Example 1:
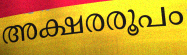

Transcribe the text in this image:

അക്ഷരരൂപം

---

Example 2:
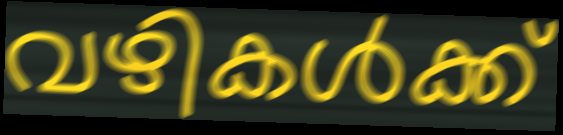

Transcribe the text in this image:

വഴികൾക്ക്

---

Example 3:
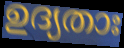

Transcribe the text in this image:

ഉദ്യതാഃ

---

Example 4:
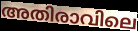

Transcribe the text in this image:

അതിരാവിലെ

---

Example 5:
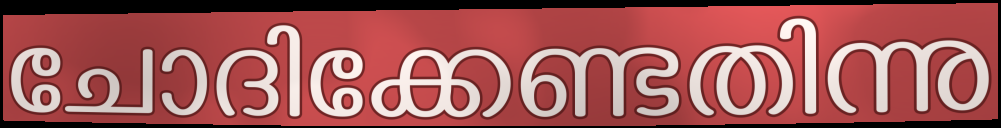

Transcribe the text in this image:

ചോദിക്കേണ്ടതിന്നു